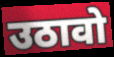
उठावो